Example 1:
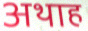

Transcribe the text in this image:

अथाह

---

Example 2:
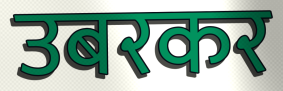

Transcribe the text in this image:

उबरकर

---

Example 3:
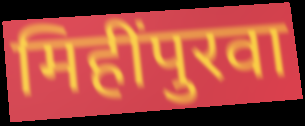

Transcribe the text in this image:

मिहींपुरवा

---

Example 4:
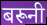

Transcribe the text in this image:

बरूनी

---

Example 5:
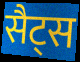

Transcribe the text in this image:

सैट्स